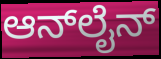
ಆನ್‍ಲೈನ್